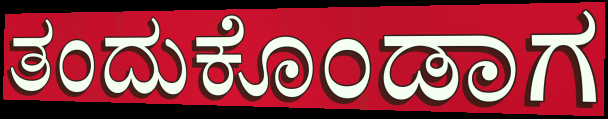
ತಂದುಕೊಂಡಾಗ